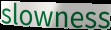
slowness